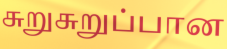
சுறுசுறுப்பான